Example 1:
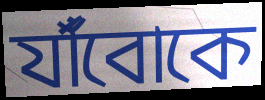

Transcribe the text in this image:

র্যাঁবোকে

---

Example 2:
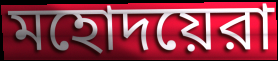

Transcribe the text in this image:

মহোদয়েরা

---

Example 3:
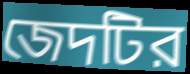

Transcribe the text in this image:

জেদটির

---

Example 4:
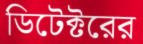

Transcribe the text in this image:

ডিটেক্টরের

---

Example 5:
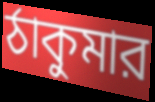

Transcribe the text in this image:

ঠাকুমার